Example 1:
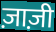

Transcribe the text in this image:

ज़ाज़ी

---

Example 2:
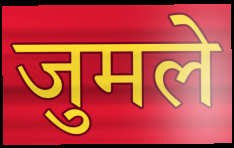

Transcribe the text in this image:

जुमले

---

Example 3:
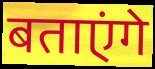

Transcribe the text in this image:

बताएंगे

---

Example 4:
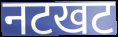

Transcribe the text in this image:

नटखट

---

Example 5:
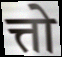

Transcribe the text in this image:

त्तो